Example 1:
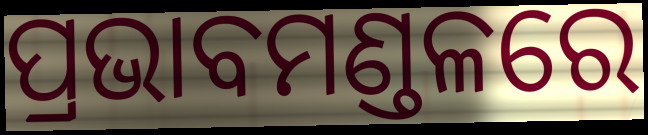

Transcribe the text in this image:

ପ୍ରଭାବମଣ୍ଡଳରେ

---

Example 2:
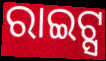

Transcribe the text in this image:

ରାଇଟ୍ସ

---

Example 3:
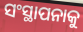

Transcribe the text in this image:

ସଂସ୍ଥାପନାକୁ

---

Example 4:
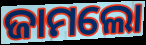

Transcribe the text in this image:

ଜାମଲୋ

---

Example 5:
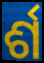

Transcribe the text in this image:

ର୍ଶ